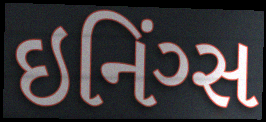
ઇનિંગ્સ